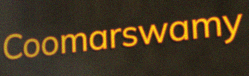
Coomarswamy